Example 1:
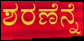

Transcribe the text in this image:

ಶರಣೆನ್ನೆ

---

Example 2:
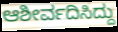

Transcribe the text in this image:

ಆಶೀರ್ವದಿಸಿದ್ದು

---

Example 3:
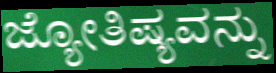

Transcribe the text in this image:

ಜ್ಯೋತಿಷ್ಯವನ್ನು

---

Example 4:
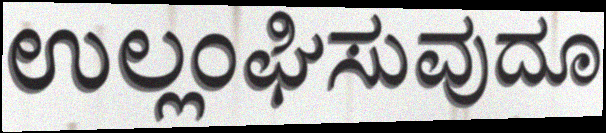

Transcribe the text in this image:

ಉಲ್ಲಂಘಿಸುವುದೂ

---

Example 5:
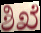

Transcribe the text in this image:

ಶಿಖೆ